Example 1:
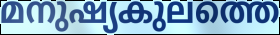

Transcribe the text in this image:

മനുഷ്യകുലത്തെ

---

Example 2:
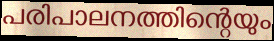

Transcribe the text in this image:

പരിപാലനത്തിന്റെയും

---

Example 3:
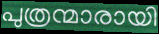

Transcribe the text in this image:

പുത്രന്മാരായി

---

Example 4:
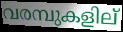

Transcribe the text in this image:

വരമ്പുകളില്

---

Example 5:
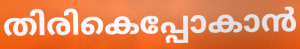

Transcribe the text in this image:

തിരികെപ്പോകാൻ